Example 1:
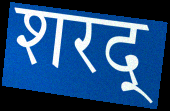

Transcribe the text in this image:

शरद्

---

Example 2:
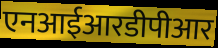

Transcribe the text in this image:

एनआईआरडीपीआर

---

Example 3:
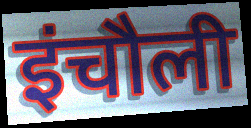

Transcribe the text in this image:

इंचौली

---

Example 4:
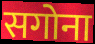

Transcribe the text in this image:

सगोना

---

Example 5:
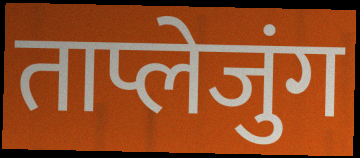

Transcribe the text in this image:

ताप्लेजुंग